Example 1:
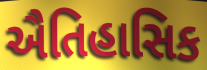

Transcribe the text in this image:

ઐતિહાસિક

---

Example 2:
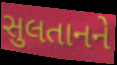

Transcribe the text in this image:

સુલતાનને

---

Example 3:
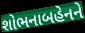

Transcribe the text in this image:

શોભનાબહેનને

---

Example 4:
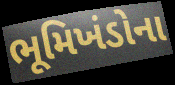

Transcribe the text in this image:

ભૂમિખંડોના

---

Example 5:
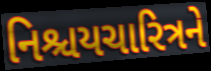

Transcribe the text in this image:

નિશ્ચયચારિત્રને